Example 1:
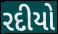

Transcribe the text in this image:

રદીયો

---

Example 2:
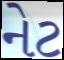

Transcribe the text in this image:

નેટ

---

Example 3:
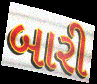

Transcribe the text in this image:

બારી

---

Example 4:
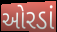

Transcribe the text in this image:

ઓરડાં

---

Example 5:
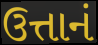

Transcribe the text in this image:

ઉત્તાનં